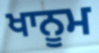
ਖਾਨੂਮ